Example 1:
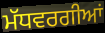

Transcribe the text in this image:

ਮੱਧਵਰਗੀਆਂ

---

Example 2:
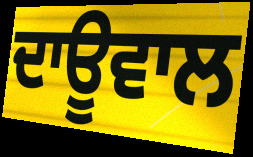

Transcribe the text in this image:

ਦਾਊਵਾਲ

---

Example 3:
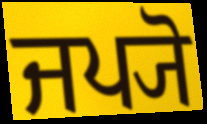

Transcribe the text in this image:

ਜਪ੍ਯੋ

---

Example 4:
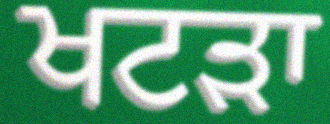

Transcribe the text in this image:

ਖਟੜਾ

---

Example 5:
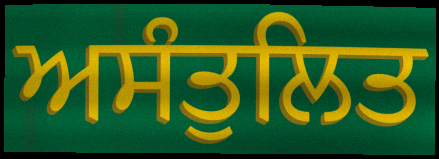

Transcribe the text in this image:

ਅਸੰਤੁਲਿਤ